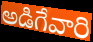
అడిగేవారి